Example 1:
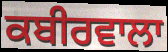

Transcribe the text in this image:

ਕਬੀਰਵਾਲਾ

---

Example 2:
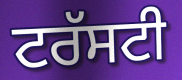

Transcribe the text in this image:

ਟਰੱਸਟੀ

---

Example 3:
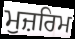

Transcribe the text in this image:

ਮੁਜ਼ਰਿਮ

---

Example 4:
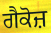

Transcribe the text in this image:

ਗੈਕੋਜ਼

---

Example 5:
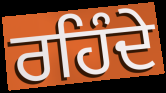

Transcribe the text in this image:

ਰਹਿੰਦੇ